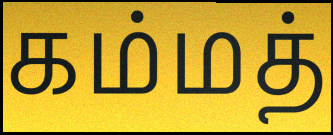
கம்மத்